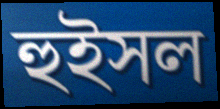
হুইসল